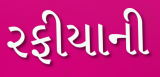
રફીયાની